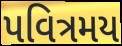
પવિત્રમય